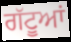
ਗੱਟੂਆਂ